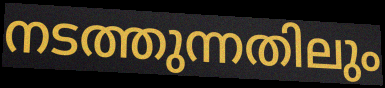
നടത്തുന്നതിലും